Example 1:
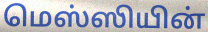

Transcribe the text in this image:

மெஸ்ஸியின்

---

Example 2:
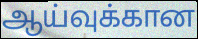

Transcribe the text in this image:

ஆய்வுக்கான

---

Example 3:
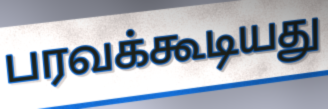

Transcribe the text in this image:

பரவக்கூடியது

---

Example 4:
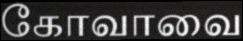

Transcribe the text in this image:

கோவாவை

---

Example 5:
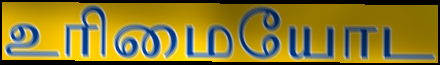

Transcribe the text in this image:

உரிமையோட